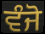
ਵੰਜੋ